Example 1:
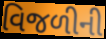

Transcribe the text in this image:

વિજળીની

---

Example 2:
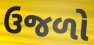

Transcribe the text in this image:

ઉજળો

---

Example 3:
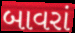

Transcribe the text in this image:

બાવરાં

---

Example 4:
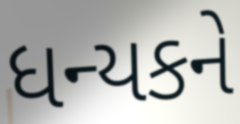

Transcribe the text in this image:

ધન્યકને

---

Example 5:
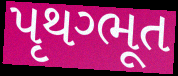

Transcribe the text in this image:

પૃથગ્ભૂત